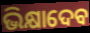
ଭିକ୍ଷାଦେବ